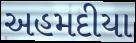
અહમદીયા